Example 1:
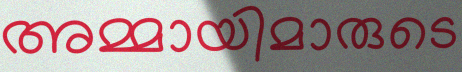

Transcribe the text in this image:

അമ്മായിമാരുടെ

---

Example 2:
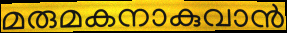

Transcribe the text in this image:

മരുമകനാകുവാൻ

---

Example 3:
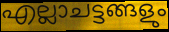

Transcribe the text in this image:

എല്ലാചട്ടങ്ങളും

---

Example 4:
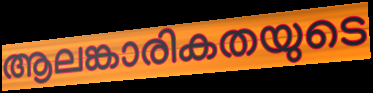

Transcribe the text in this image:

ആലങ്കാരികതയുടെ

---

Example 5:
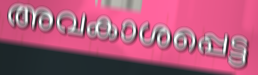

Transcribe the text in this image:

അവകാശപ്പെട്ട